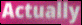
Actually